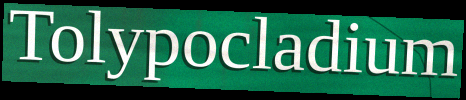
Tolypocladium